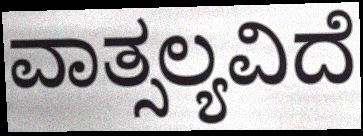
ವಾತ್ಸಲ್ಯವಿದೆ